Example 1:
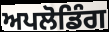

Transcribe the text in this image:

ਅਪਲੋਡਿੰਗ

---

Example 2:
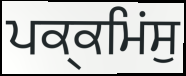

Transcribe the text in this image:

ਪਕ੍ਕਮਿਂਸੁ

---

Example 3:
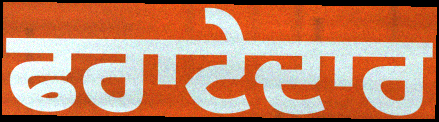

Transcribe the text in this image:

ਫਰਾਟੇਦਾਰ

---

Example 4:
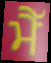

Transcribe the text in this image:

ਮੈੱ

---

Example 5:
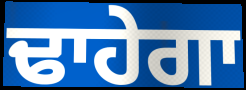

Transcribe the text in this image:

ਢਾਹੇਗਾ